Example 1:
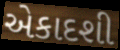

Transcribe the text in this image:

એકાદશી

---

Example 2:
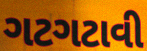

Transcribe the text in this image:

ગટગટાવી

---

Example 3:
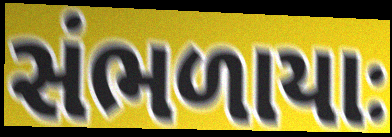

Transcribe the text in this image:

સંભળાયાઃ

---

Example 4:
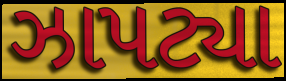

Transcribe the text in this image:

ઝાપટ્યા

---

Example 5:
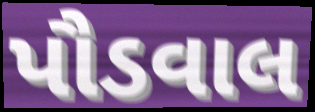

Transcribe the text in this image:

પૌડવાલ